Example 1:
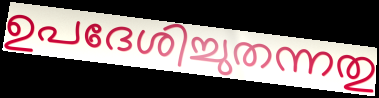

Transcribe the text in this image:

ഉപദേശിച്ചുതന്നതു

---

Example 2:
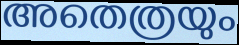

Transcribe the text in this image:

അതെത്രയും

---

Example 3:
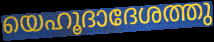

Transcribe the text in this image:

യെഹൂദാദേശത്തു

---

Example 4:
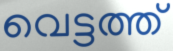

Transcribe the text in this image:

വെട്ടത്ത്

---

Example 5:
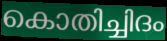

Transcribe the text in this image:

കൊതിച്ചിദം